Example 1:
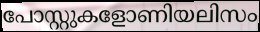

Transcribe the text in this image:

പോസ്റ്റുകളോണിയലിസം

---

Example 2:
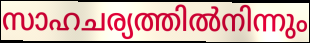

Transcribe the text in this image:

സാഹചര്യത്തിൽനിന്നും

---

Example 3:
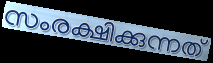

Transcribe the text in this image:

സംരക്ഷിക്കുന്നത്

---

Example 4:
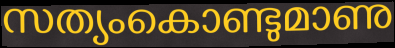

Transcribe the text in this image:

സത്യംകൊണ്ടുമാണു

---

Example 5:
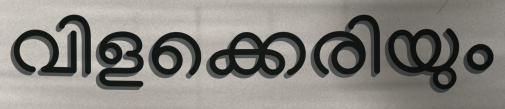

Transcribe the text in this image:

വിളക്കെരിയും